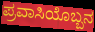
ಪ್ರವಾಸಿಯೊಬ್ಬನ